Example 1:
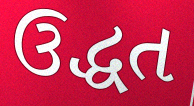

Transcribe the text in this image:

ઉદ્ધત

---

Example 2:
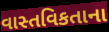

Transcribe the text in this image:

વાસ્તવિકતાના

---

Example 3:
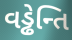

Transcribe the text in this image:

વડ્ઢેન્તિ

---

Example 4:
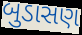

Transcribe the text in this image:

બુડાસણ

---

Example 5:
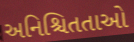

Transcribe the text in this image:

અનિશ્ચિતતાઓ